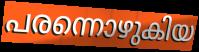
പരന്നൊഴുകിയ